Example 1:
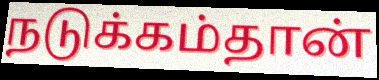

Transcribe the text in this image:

நடுக்கம்தான்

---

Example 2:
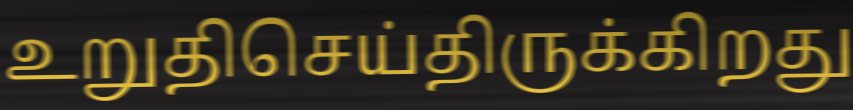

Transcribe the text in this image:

உறுதிசெய்திருக்கிறது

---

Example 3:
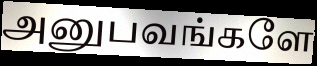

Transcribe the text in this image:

அனுபவங்களே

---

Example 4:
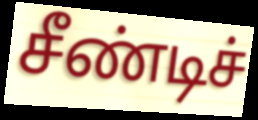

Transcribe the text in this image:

சீண்டிச்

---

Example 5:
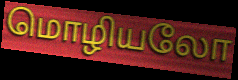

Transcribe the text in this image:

மொழியலோ